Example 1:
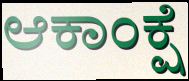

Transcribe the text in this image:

ಆಕಾಂಕ್ಷೆ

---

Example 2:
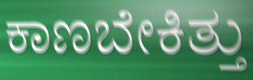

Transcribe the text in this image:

ಕಾಣಬೇಕಿತ್ತು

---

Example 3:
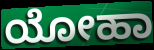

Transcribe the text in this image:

ಯೋಹಾ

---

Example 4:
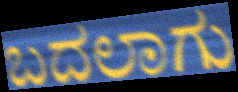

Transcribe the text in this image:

ಬದಲಾಗು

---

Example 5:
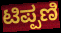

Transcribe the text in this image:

ಟಿಪ್ಪಣಿ